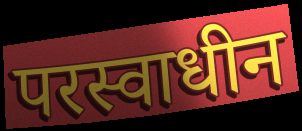
परस्वाधीन